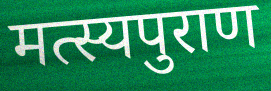
मत्स्यपुराण